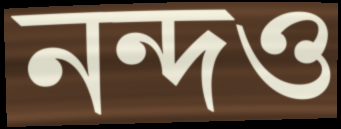
নন্দও